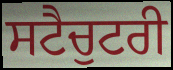
ਸਟੈਚੁਟਰੀ